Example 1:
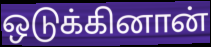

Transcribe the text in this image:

ஒடுக்கினான்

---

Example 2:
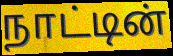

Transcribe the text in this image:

நாட்டின்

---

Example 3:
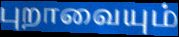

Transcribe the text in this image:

புறாவையும்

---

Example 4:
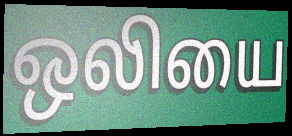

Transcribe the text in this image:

ஒலியை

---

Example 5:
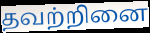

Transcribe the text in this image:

தவற்றினை